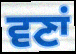
ਵਣਾਂ